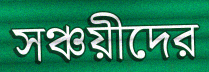
সঞ্চয়ীদের